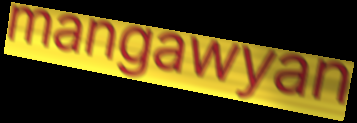
mangawyan